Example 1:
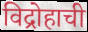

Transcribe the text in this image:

विद्रोहाची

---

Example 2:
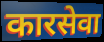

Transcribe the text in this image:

कारसेवा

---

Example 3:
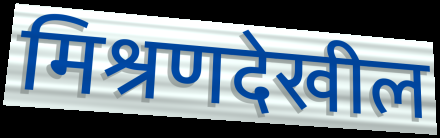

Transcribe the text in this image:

मिश्रणदेखील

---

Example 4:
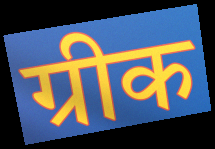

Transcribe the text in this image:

ग्रीक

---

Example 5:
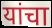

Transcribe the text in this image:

यांचा